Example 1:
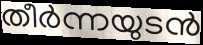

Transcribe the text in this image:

തീർന്നയുടൻ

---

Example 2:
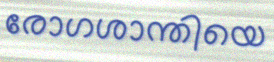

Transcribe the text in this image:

രോഗശാന്തിയെ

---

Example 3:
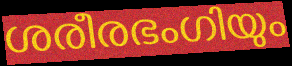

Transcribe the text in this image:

ശരീരഭംഗിയും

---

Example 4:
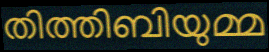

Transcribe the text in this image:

തിത്തിബിയുമ്മ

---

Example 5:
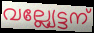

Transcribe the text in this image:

വല്ല്യേട്ടന്